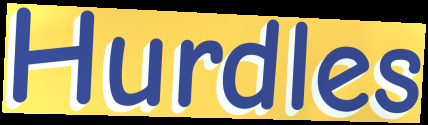
Hurdles